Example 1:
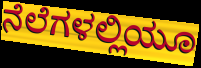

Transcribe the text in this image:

ನೆಲೆಗಳಲ್ಲಿಯೂ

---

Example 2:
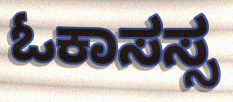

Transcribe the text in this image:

ಓಕಾಸಸ್ಸ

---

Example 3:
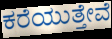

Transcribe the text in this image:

ಕರೆಯುತ್ತೇವೆ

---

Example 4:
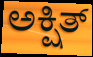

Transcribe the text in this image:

ಅಕ್ಷಿತ್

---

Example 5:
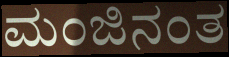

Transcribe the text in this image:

ಮಂಜಿನಂತ